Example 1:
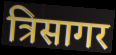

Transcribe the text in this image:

त्रिसागर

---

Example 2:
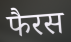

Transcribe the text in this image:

फैरस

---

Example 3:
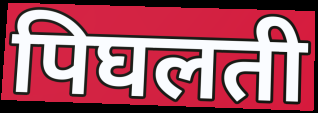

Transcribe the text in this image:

पिघलती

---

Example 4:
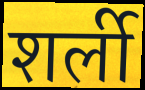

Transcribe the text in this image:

शर्ली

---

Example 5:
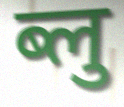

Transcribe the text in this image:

ब्लु